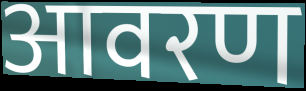
आवरण